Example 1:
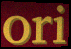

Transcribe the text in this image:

ori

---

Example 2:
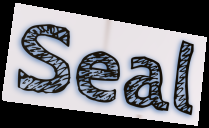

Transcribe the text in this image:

Seal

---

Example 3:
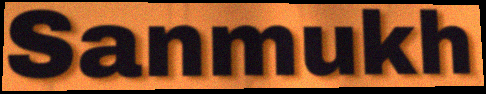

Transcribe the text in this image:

Sanmukh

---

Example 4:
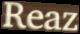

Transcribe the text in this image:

Reaz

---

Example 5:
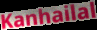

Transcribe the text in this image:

Kanhailal